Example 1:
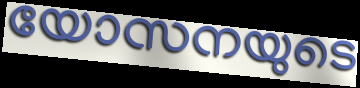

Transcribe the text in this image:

യോസനയുടെ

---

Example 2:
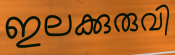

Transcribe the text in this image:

ഇലക്കുരുവി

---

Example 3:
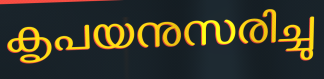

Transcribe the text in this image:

കൃപയനുസരിച്ചു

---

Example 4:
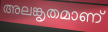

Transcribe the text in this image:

അലങ്കൃതമാണ്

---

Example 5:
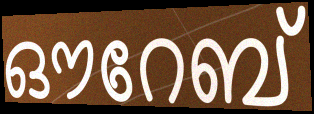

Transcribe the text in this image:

ഔറേബ്